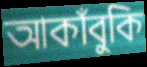
আকাঁবুকি